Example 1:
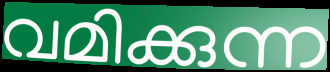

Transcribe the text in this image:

വമിക്കുന്ന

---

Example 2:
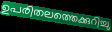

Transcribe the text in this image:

ഉപരിതലത്തെക്കുറിച്ചു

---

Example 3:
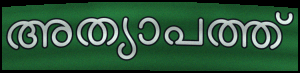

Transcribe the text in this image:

അത്യാപത്ത്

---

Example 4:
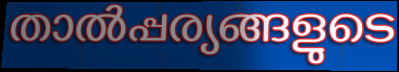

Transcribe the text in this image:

താൽപ്പര്യങ്ങളുടെ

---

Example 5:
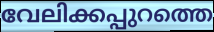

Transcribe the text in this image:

വേലിക്കപ്പുറത്തെ